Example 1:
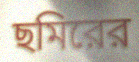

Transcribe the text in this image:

ছমিরের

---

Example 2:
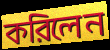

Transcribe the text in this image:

করিলেন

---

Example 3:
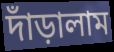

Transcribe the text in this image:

দাঁড়ালাম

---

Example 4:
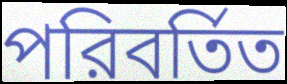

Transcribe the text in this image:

পরিবর্তিত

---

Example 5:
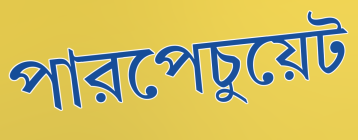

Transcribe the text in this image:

পারপেচুয়েট